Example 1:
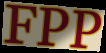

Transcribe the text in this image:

FPP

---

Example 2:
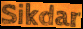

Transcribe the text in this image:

Sikdar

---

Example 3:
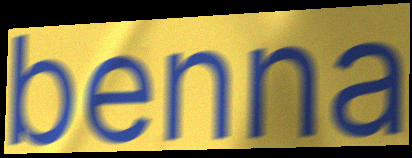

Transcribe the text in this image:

benna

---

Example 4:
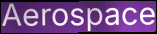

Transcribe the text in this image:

Aerospace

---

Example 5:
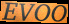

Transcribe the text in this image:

EVOO